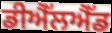
ਡੀਐੱਲਐੱਡ